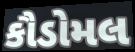
કૌડોમલ